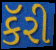
કૅરી